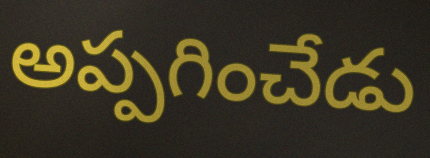
అప్పగించేడు